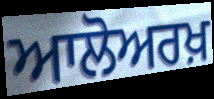
ਆਲੋਅਰਖ਼